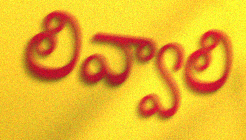
లివ్వాలి